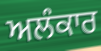
ਅਲੰਕਾਰ